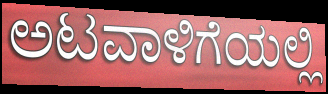
ಅಟವಾಳಿಗೆಯಲ್ಲಿ